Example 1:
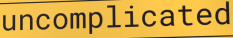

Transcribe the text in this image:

uncomplicated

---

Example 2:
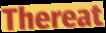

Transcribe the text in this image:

Thereat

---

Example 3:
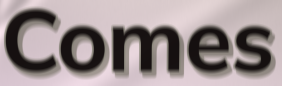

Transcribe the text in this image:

Comes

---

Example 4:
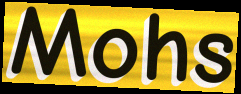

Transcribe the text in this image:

Mohs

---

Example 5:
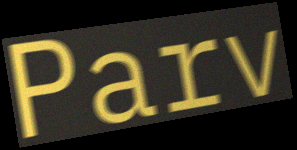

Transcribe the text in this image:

Parv